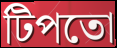
টিপতো